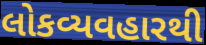
લોકવ્યવહારથી